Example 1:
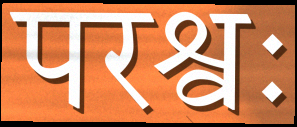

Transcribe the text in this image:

परश्वः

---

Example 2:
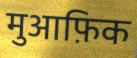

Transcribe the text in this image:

मुआफ़िक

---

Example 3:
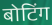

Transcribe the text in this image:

बोटिंग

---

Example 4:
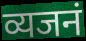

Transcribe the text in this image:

व्यजनं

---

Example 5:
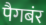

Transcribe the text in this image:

पैगबंर